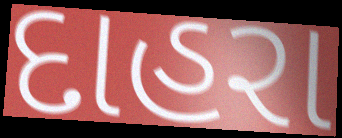
દાહરા